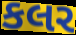
કલર